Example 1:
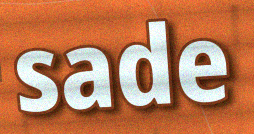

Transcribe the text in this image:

sade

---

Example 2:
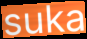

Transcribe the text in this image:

suka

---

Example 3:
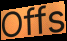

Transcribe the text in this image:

Offs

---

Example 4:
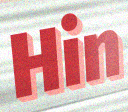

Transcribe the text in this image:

Hin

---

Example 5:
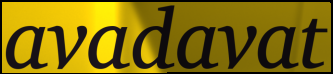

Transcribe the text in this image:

avadavat